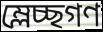
ম্লেচ্ছগণ